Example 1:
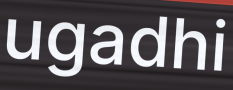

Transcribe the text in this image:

ugadhi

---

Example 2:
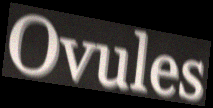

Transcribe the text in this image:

Ovules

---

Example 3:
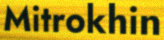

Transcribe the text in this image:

Mitrokhin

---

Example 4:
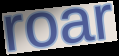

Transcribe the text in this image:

roar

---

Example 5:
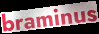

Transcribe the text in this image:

braminus